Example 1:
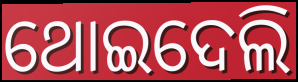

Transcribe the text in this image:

ଥୋଇଦେଲି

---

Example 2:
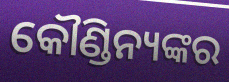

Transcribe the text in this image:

କୌଣ୍ଡିନ୍ୟଙ୍କର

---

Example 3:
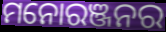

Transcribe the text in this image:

ମନୋରଞ୍ଜନର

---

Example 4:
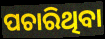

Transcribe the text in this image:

ପଚାରିଥିବା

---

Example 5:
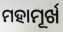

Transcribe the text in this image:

ମହାମୂର୍ଖ